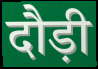
दौड़ी